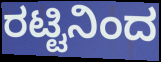
ರಟ್ಟಿನಿಂದ